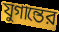
যুগান্তের